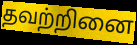
தவற்றினை